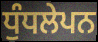
ਧੁੰਧਲੇਪਨ